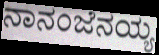
ನಾನಂಜೆನಯ್ಯ